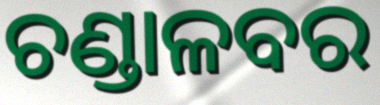
ଚଣ୍ଡାଳବର